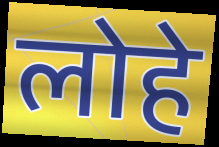
लोहे